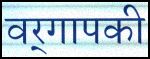
वर्गापकी